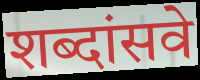
शब्दांसवे